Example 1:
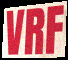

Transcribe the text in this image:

VRF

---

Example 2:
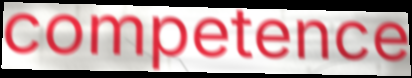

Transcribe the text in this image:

competence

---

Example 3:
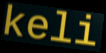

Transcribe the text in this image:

keli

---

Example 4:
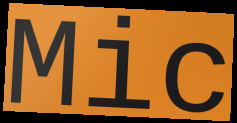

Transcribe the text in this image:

Mic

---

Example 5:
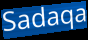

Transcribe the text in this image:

Sadaqa